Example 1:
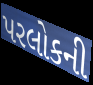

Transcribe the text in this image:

પરલોકની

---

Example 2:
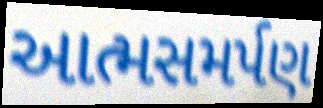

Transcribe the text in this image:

આત્મસમર્પણ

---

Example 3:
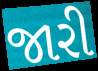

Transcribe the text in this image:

જારી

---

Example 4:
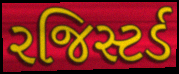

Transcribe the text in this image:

રજિસ્ટર્ડ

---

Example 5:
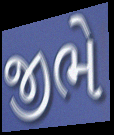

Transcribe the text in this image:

જીભે